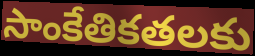
సాంకేతికతలకు